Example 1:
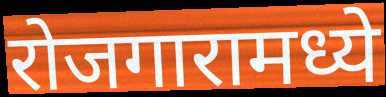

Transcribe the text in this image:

रोजगारामध्ये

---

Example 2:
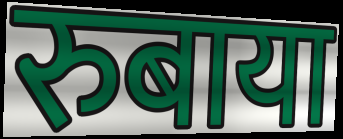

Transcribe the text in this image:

रुबाया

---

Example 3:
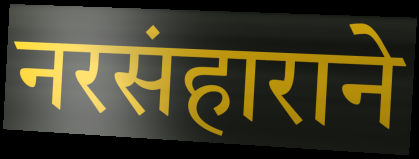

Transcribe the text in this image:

नरसंहाराने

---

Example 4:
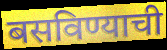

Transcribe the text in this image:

बसविण्याची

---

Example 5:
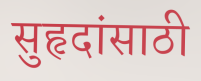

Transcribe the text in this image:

सुहृदांसाठी